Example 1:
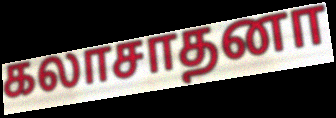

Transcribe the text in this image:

கலாசாதனா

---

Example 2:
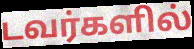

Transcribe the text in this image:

டவர்களில்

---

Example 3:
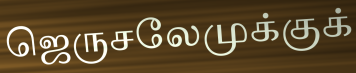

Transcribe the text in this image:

ஜெருசலேமுக்குக்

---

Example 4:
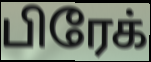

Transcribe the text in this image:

பிரேக்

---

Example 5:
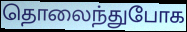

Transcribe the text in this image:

தொலைந்துபோக